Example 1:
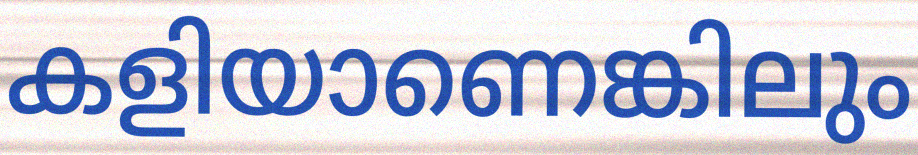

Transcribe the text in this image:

കളിയാണെങ്കിലും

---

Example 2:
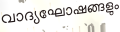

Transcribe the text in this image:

വാദ്യഘോഷങ്ങളും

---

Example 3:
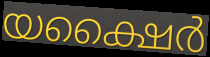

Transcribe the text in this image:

യക്ഷൈർ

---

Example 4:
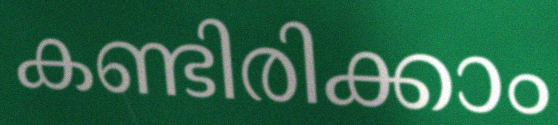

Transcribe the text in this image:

കണ്ടിരിക്കാം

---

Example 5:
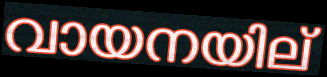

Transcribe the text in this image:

വായനയില്